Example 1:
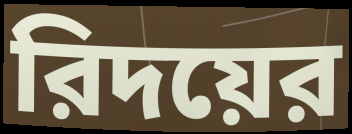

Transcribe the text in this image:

রিদয়ের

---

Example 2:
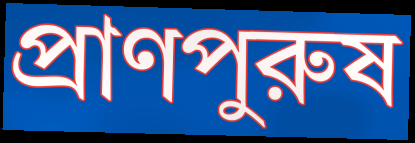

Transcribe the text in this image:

প্রাণপুরুষ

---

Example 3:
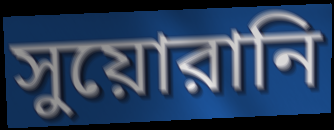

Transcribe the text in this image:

সুয়োরানি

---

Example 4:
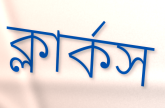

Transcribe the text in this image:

ক্লার্কস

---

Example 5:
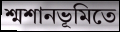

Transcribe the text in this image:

শ্মশানভূমিতে